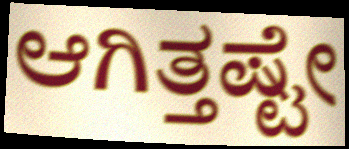
ಆಗಿತ್ತಷ್ಟೇ